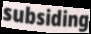
subsiding